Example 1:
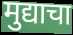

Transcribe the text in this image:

मुद्याचा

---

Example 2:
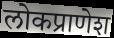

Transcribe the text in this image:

लोकप्राणेश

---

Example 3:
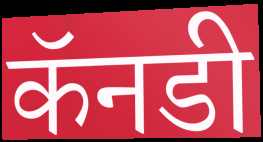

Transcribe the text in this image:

कॅनडी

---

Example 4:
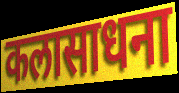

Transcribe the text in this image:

कलासाधना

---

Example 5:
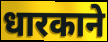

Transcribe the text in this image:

धारकाने